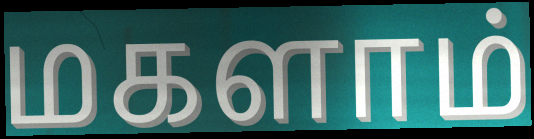
மகளாம்